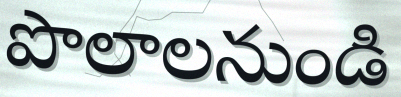
పొలాలనుండి